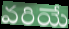
వరియే